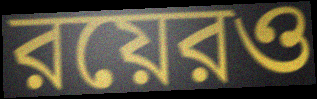
রয়েরও